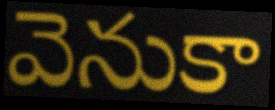
వెనుకా